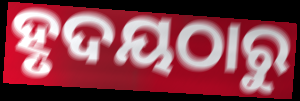
ହୃଦୟଠାରୁ